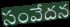
సంవేదన